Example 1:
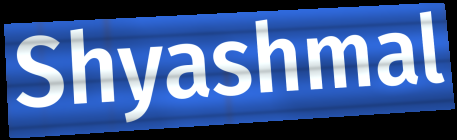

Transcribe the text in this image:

Shyashmal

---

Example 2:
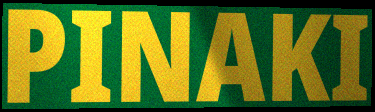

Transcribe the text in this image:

PINAKI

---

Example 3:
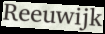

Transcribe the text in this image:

Reeuwijk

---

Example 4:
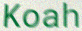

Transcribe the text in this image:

Koah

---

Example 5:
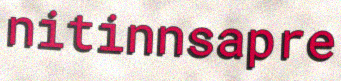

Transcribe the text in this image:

nitinnsapre